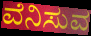
ವೆನಿಸುವ